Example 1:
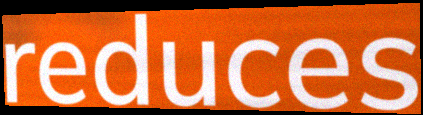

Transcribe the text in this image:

reduces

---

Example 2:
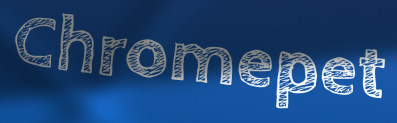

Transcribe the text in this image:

Chromepet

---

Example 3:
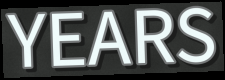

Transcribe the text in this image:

YEARS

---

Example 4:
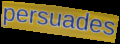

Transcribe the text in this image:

persuades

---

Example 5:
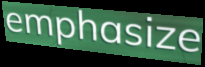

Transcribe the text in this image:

emphasize